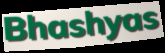
Bhashyas